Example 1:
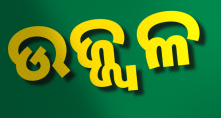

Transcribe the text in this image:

ଉଜ୍ଜ୍ବଳ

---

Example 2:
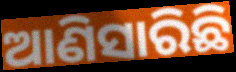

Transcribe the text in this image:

ଆଣିସାରିଛି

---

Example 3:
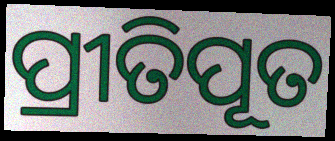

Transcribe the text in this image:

ପ୍ରୀତିପୂତ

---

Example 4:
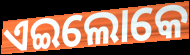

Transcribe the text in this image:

ଏଇଲୋକେ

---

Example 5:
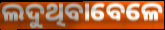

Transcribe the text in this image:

ଲଦୁଥିବାବେଳେ